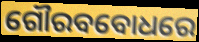
ଗୌରବବୋଧରେ